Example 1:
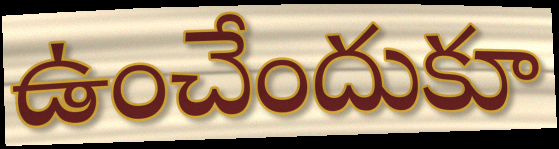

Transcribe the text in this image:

ఉంచేందుకూ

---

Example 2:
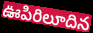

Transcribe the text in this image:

ఊపిరిలూదిన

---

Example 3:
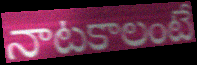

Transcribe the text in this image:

నాటకాలంటే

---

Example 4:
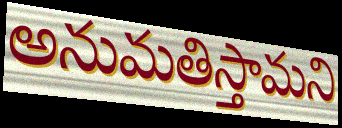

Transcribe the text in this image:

అనుమతిస్తామని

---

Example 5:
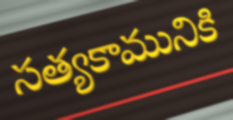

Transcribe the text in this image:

సత్యకామునికి